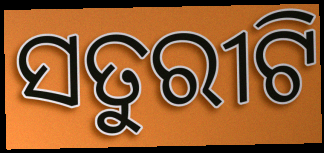
ସତୁରୀଟି